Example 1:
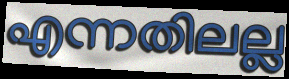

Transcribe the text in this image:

എന്നതിലല്ല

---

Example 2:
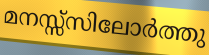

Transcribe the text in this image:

മനസ്സ്സിലോർത്തു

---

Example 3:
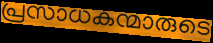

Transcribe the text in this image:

പ്രസാധകന്മാരുടെ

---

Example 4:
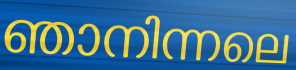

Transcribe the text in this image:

ഞാനിന്നലെ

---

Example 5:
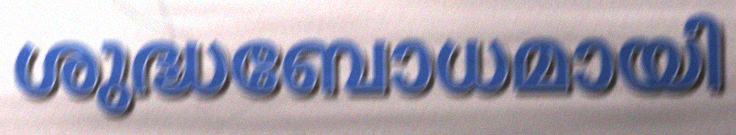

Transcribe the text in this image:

ശുദ്ധബോധമായി